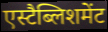
एस्टैब्लिशमेंट